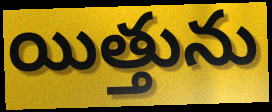
యిత్తును